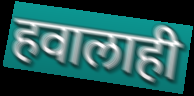
हवालाही